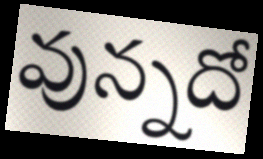
వున్నదో